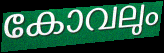
കോവലും